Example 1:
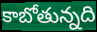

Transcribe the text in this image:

కాబోతున్నది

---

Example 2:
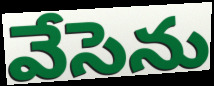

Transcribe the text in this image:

వేసెను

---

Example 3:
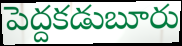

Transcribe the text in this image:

పెద్దకడుబూరు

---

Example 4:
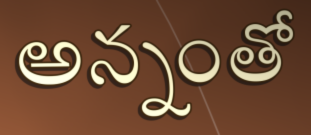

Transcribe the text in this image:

అన్నంతో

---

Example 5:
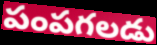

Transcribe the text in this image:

పంపగలడు